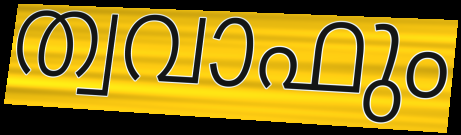
ത്വവാഫും